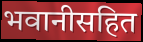
भवानीसहित